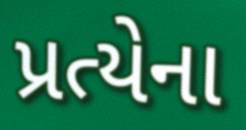
પ્રત્યેના